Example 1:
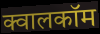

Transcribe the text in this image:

क्वालकॉम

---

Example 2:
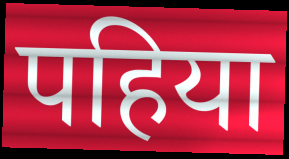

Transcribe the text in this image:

पहिया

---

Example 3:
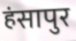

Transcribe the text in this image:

हंसापुर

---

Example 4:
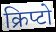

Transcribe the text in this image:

क्रिप्टो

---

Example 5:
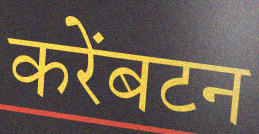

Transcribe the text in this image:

करेंबटन